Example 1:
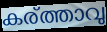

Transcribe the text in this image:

കര്ത്താവു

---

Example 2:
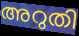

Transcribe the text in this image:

അറുതി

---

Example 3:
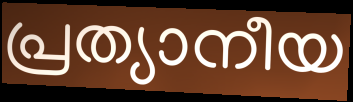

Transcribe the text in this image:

പ്രത്യാനീയ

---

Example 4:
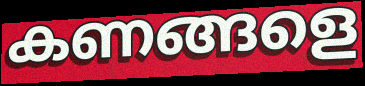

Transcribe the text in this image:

കണങ്ങളെ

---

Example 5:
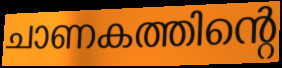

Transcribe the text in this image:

ചാണകത്തിന്റെ